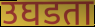
उघडता